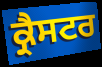
ਕ੍ਰੈਸਟਰ